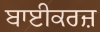
ਬਾਈਕਰਜ਼